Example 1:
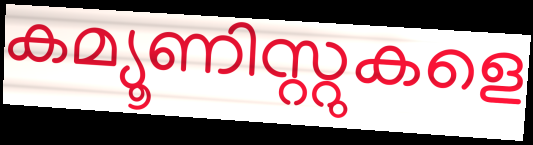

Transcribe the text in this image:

കമ്യൂണിസ്റ്റുകളെ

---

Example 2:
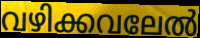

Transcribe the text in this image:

വഴിക്കവലേൽ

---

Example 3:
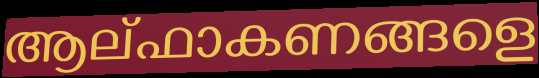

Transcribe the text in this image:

ആല്ഫാകണങ്ങളെ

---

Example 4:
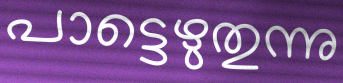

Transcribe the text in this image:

പാട്ടെഴുതുന്നു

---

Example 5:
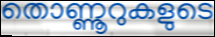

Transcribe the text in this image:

തൊണ്ണൂറുകളുടെ